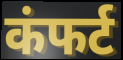
कंफर्ट